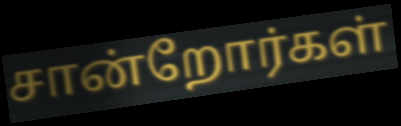
சான்றோர்கள்